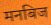
मनबिज